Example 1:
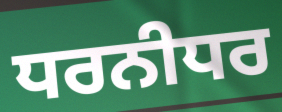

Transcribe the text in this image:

ਧਰਨੀਧਰ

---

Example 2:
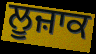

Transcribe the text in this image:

ਲੂਜ਼ਾਕ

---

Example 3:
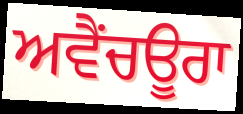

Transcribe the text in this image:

ਅਵੈਂਚਊਰਾ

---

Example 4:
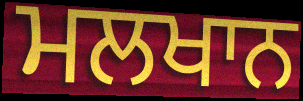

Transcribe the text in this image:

ਮਲਖਾਨ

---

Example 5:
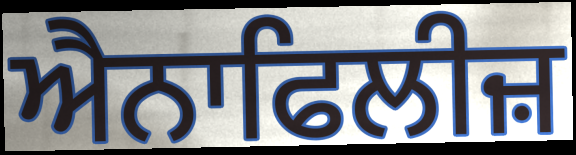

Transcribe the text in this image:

ਐਨਾਫਿਲੀਜ਼